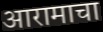
आरामाचा